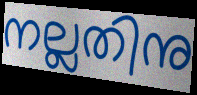
നല്ലതിനു